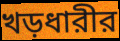
খড়ধারীর